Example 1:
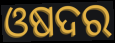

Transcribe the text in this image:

ଓଷଦର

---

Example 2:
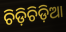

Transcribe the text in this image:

ଚିଡ଼ିଚିଡ଼ିଆ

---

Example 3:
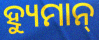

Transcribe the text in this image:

ହ୍ୟୁମାନ୍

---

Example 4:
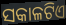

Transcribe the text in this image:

ସକାଳଟିଏ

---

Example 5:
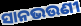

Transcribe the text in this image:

ସାନଭଉଣୀ